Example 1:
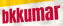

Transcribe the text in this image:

bkkumar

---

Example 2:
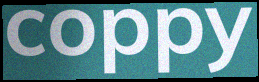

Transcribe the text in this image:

coppy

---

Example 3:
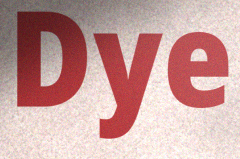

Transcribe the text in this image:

Dye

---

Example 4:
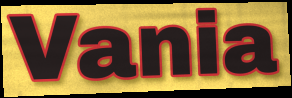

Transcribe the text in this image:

Vania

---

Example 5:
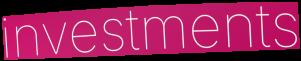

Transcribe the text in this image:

investments